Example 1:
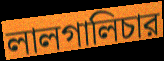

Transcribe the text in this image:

লালগালিচার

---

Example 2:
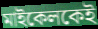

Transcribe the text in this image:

মাইকেলকেই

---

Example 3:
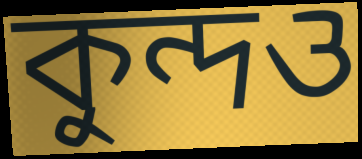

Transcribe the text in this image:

কুন্দও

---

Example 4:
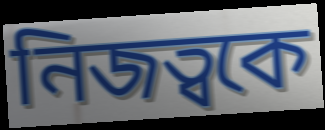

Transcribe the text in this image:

নিজত্বকে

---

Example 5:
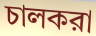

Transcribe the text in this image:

চালকরা